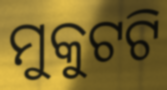
ମୁକୁଟଟି